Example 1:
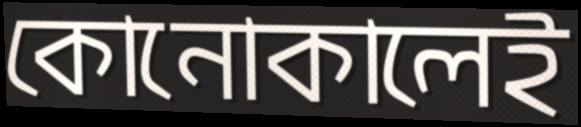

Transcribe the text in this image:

কোনোকালেই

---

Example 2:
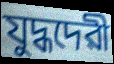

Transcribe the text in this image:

যুদ্ধদেৱী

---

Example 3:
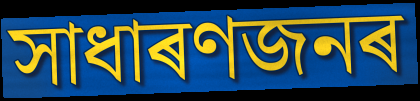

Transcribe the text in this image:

সাধাৰণজনৰ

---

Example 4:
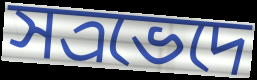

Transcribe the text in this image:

সত্ৰভেদে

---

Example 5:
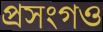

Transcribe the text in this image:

প্ৰসংগও